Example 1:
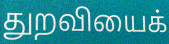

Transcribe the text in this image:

துறவியைக்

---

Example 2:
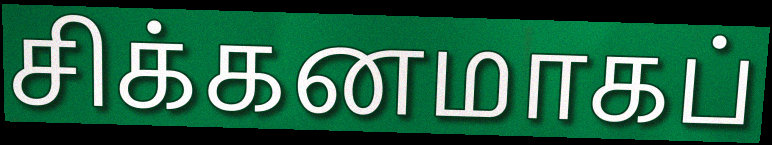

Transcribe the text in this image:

சிக்கனமாகப்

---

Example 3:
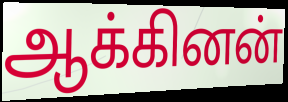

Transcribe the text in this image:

ஆக்கினன்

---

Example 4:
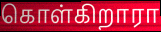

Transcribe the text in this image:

கொள்கிறாரா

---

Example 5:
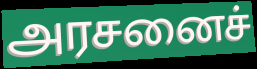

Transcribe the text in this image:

அரசனைச்